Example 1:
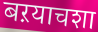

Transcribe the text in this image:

बऱयाचशा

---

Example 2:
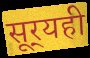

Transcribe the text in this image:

सूर्यही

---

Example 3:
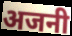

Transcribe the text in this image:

अजनी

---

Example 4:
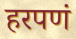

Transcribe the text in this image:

हरपणं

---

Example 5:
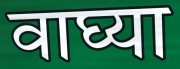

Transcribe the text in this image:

वाघ्या